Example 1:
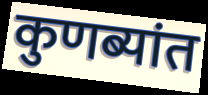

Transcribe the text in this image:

कुणब्यांत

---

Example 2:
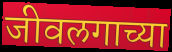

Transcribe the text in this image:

जीवलगाच्या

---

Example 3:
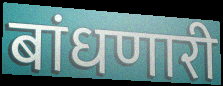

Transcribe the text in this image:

बांधणारी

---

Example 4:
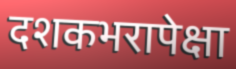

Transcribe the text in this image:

दशकभरापेक्षा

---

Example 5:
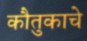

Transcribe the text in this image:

कौतुकाचे